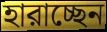
হারাচ্ছেন